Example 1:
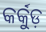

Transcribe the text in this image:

କର୍କୁଡ଼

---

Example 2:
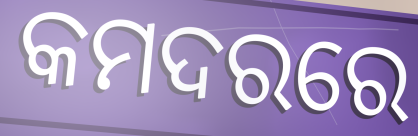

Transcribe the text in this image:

କମଦରରେ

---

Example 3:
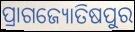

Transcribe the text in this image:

ପ୍ରାଗଜ୍ୟୋତିଷପୁର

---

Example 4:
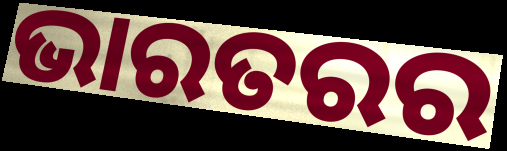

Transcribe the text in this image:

ଭାରତରର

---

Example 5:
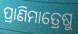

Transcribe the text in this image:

ପ୍ରାଣିମାତ୍ରେଷୁ